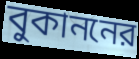
বুকাননের